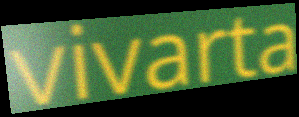
vivarta